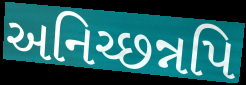
અનિચ્છન્નપિ